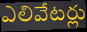
ఎలివేటర్లు